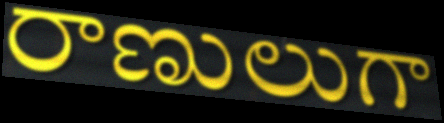
రాణులుగా